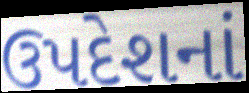
ઉપદેશનાં